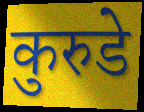
कुरुडे